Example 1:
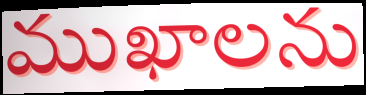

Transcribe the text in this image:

ముఖాలను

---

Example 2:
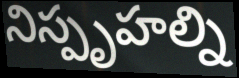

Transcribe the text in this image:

నిస్పృహల్ని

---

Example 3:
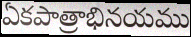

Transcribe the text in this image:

ఏకపాత్రాభినయము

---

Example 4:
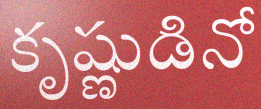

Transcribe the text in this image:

కృష్ణుడినో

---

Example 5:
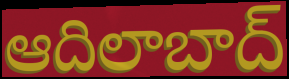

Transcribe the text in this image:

ఆదిలాబాద్